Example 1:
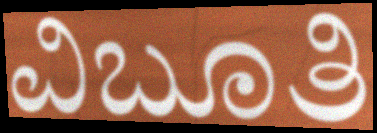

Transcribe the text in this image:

ವಿಬೂತಿ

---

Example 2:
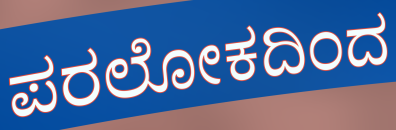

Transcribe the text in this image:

ಪರಲೋಕದಿಂದ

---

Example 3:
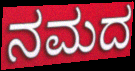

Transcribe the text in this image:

ನಮದ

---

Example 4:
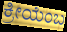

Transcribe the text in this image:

ಕ್ರೀಯೆಂಬ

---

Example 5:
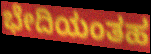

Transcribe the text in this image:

ಭೇದಿಯಂತಹ